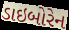
ડાઇબોરેન